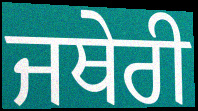
ਜਥੇਰੀ